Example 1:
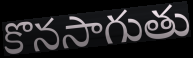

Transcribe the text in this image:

కొనసాగుతు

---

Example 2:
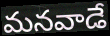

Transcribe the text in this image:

మనవాడే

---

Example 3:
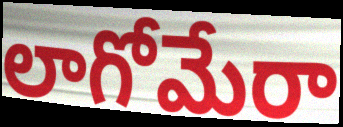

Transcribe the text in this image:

లాగోమేరా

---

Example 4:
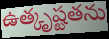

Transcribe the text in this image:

ఉత్కృష్టతను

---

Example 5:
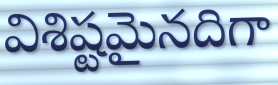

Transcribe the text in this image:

విశిష్టమైనదిగా